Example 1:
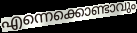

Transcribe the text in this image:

എന്നെക്കൊണ്ടാവും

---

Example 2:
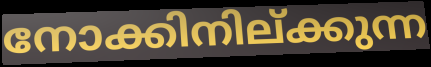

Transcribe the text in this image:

നോക്കിനില്ക്കുന്ന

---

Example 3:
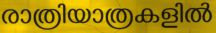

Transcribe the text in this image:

രാത്രിയാത്രകളിൽ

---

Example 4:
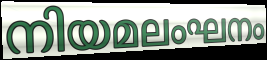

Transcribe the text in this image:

നിയമലംഘനം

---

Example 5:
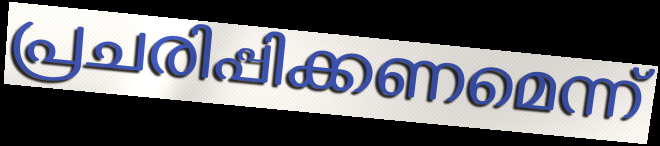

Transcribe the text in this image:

പ്രചരിപ്പിക്കണമെന്ന്